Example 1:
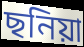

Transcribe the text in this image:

ছনিয়া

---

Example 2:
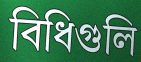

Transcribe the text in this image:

বিধিগুলি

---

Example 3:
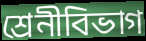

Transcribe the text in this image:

শ্রেনীবিভাগ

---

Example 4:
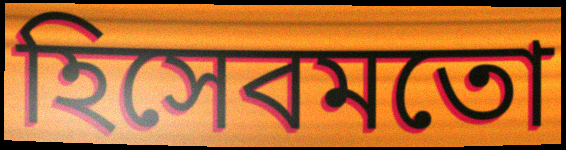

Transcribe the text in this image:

হিসেবমতো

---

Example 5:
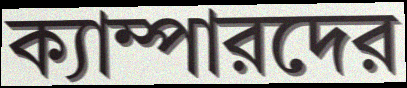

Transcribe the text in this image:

ক্যাম্পারদের